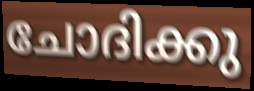
ചോദിക്കു